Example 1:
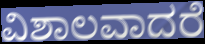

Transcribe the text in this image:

ವಿಶಾಲವಾದರೆ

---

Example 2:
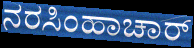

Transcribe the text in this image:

ನರಸಿಂಹಾಚಾರ್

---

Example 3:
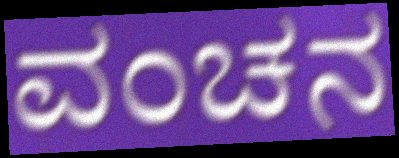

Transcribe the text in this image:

ವಂಚನ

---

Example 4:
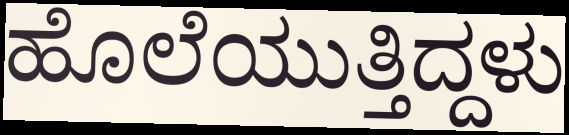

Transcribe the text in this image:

ಹೊಲೆಯುತ್ತಿದ್ದಳು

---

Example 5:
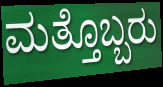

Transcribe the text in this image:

ಮತ್ತೊಬ್ಬರು